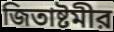
জিতাষ্টমীর